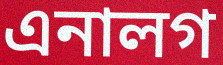
এনালগ